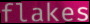
flakes